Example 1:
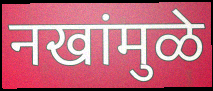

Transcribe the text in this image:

नखांमुळे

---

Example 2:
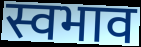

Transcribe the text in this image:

स्वभाव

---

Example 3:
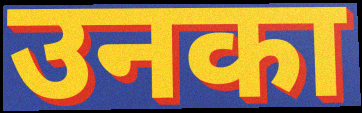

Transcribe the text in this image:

उनका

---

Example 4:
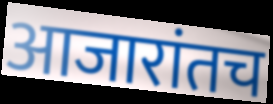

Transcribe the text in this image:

आजारांतच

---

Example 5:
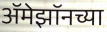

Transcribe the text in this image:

ॲमेझॉनच्या